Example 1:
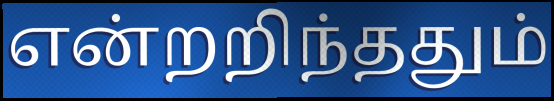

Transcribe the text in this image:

என்றறிந்ததும்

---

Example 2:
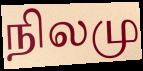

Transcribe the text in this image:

நிலமு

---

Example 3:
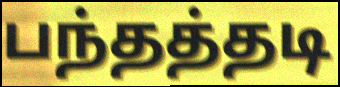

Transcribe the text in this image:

பந்தத்தடி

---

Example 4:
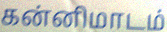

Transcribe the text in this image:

கன்னிமாடம்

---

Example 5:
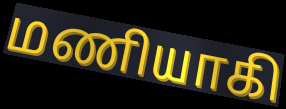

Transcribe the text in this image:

மணியாகி